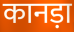
कानड़ा